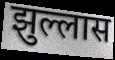
झुल्लास